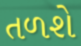
તળશે